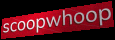
scoopwhoop